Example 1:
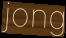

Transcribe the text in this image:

jong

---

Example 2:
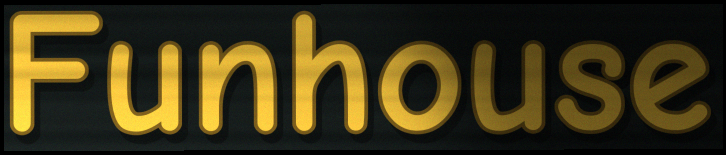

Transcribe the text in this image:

Funhouse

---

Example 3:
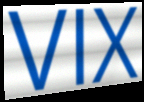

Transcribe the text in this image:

VIX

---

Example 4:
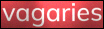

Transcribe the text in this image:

vagaries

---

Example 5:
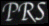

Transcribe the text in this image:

PRS